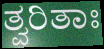
ತ್ವರಿತಾಃ